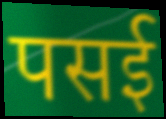
पसई